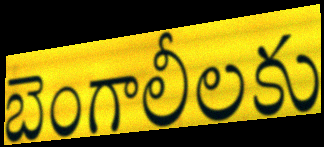
బెంగాలీలకు